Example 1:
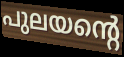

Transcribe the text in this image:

പുലയന്റെ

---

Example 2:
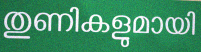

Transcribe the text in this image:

തുണികളുമായി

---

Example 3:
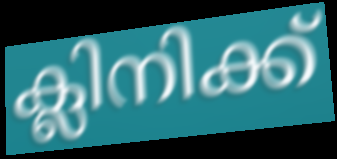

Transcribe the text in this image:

ക്ലിനിക്ക്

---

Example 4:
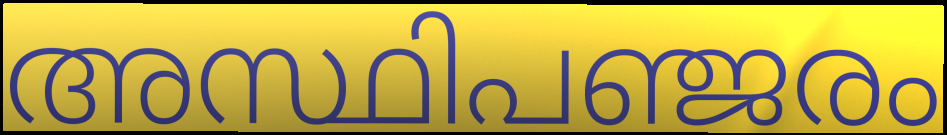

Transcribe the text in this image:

അസ്ഥിപഞ്ജരം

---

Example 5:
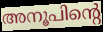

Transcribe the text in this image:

അനൂപിന്റെ